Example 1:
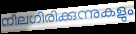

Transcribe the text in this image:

നീലഗിരിക്കുന്നുകളും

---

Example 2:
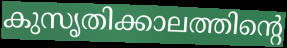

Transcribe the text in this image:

കുസൃതിക്കാലത്തിന്റെ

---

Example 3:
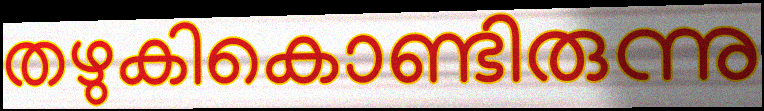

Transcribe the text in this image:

തഴുകികൊണ്ടിരുന്നു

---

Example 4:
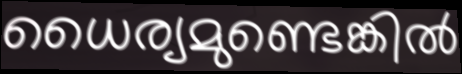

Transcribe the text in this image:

ധൈര്യമുണ്ടെങ്കിൽ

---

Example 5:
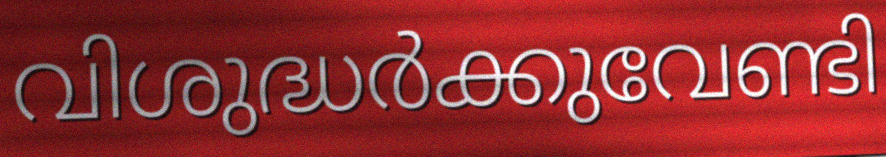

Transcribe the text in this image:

വിശുദ്ധർക്കുവേണ്ടി